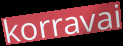
korravai